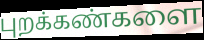
புறக்கண்களை